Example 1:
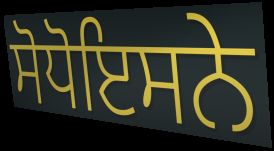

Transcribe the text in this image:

ਸੋਧੋਇਸਨੇ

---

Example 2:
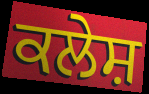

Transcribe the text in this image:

ਕਲੇਸ਼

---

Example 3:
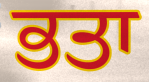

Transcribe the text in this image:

ਭਤਾ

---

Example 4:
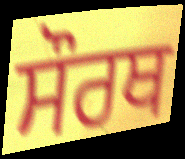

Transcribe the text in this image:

ਸੌਰਥ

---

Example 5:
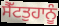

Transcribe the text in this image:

ਸੈੱਟਤੁਹਾਨੂੰ